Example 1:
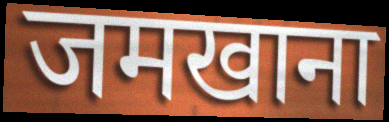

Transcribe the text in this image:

जमखाना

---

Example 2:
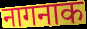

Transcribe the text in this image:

नागनाक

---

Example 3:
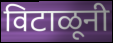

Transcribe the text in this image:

विटाळूनी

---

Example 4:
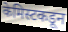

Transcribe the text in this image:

केमिस्टकडून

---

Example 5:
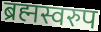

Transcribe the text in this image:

ब्रह्मस्वरुप